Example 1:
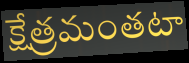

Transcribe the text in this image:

క్షేత్రమంతటా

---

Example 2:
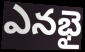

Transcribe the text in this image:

ఎనభై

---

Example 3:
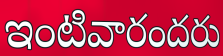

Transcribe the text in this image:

ఇంటివారందరు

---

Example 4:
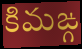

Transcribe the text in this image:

కిమఙ్గ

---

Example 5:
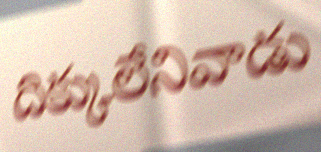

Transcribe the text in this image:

దిక్కులేనివాడు